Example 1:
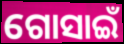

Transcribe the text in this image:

ଗୋସାଇଁ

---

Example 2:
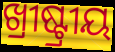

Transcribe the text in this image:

ଖ୍ରୀଷ୍ଟ୍ରୀୟ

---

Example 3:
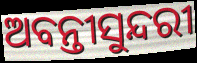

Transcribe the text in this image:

ଅବନ୍ତୀସୁନ୍ଦରୀ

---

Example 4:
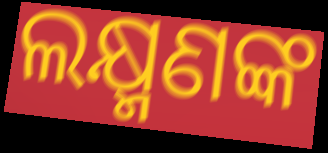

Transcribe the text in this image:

ଲକ୍ଷ୍ମଣଙ୍କ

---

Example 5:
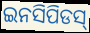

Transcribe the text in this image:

ଇନସିପିଡସ୍